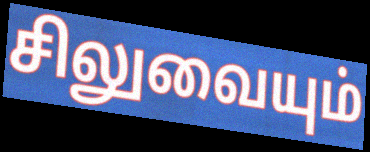
சிலுவையும்